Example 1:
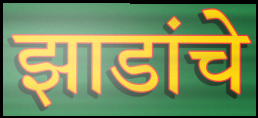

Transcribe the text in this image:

झाडांचे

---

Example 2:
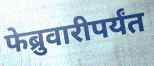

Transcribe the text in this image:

फेब्रुवारीपर्यंत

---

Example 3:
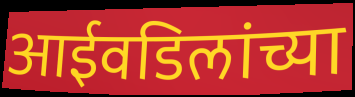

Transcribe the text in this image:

आईवडिलांच्या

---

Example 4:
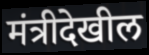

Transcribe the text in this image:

मंत्रीदेखील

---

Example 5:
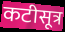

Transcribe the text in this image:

कटीसूत्र